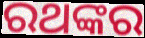
ରଥଙ୍କର